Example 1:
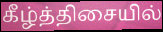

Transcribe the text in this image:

கீழ்த்திசையில்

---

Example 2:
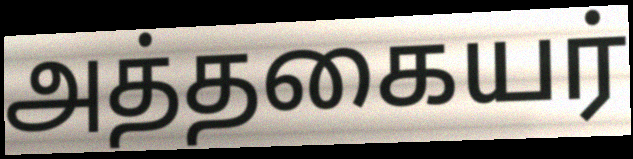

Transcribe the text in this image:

அத்தகையர்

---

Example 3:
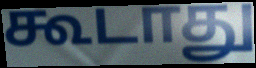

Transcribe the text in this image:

கூடாது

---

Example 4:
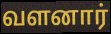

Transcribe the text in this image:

வளனார்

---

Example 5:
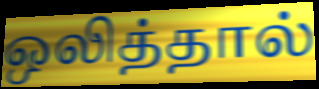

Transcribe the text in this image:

ஒலித்தால்